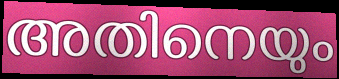
അതിനെയും